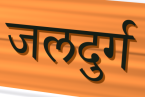
जलदुर्ग